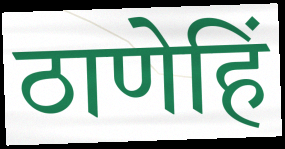
ठाणेहिं